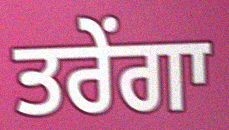
ਤਰੇਂਗਾ